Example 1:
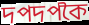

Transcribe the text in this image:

দপদপকৈ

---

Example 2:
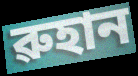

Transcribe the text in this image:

ৱুহান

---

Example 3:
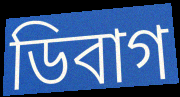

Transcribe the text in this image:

ডিবাগ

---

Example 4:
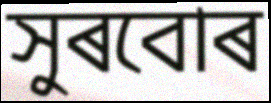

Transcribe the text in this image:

সুৰবোৰ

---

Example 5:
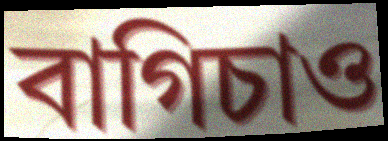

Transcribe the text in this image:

বাগিচাও